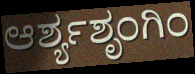
ಆರ್ಶ್ಯಶೃಂಗಿಂ